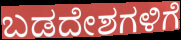
ಬಡದೇಶಗಳಿಗೆ